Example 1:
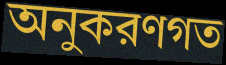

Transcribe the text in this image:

অনুকরণগত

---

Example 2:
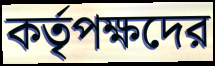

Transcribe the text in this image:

কর্তৃপক্ষদের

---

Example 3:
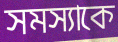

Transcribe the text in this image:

সমস্যাকে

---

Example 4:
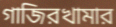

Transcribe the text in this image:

গাজিরখামার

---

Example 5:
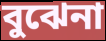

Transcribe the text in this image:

বুঝেনা